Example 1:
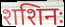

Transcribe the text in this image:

शशिनः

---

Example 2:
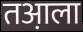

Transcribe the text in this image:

तआ़ला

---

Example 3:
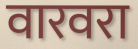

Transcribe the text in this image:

वारवरा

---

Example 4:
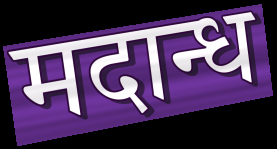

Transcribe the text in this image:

मदान्ध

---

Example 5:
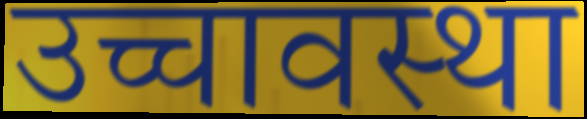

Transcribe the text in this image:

उच्चावस्था